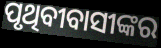
ପୃଥିବୀବାସୀଙ୍କର